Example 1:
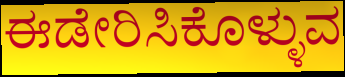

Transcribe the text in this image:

ಈಡೇರಿಸಿಕೊಳ್ಳುವ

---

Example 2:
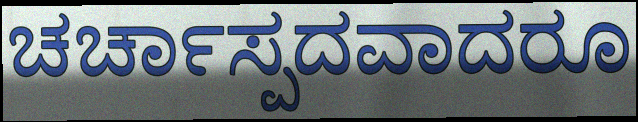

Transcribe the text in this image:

ಚರ್ಚಾಸ್ಪದವಾದರೂ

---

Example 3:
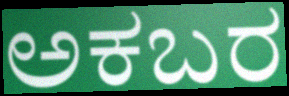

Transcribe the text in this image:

ಅಕಬರ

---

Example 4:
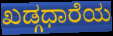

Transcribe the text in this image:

ಖಡ್ಗಧಾರೆಯ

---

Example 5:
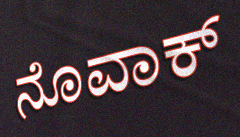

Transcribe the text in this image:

ನೊವಾಕ್